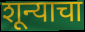
शून्याचा